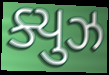
ક્યુઝ